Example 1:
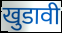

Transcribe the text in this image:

खुडावी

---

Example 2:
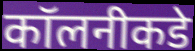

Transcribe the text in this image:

कॉलनीकडे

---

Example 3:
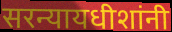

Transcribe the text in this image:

सरन्यायधीशांनी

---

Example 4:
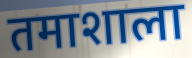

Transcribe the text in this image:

तमाशाला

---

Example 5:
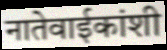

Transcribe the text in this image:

नातेवाईकांशी